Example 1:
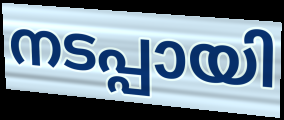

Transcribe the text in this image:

നടപ്പായി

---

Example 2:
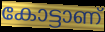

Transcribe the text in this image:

കോട്ടാണ്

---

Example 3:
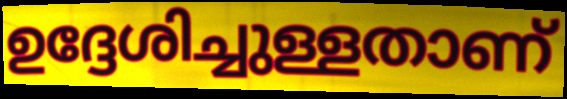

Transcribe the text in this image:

ഉദ്ദേശിച്ചുള്ളതാണ്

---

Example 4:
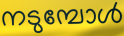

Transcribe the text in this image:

നടുമ്പോൾ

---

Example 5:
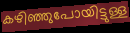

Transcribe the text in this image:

കഴിഞ്ഞുപോയിട്ടുള്ള